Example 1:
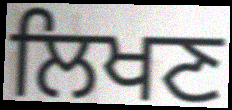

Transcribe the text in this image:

ਲਿਖਣ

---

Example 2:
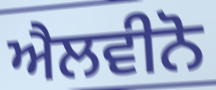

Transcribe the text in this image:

ਐਲਵੀਨੋ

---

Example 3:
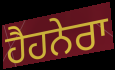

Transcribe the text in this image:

ਹੈਹਨੇਰਾ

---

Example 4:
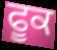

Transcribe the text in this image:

ਫੂਕ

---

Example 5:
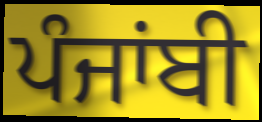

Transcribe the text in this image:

ਪੰਜਾਂਬੀ